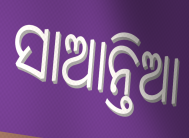
ସାଆନ୍ତିଆ